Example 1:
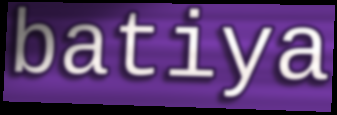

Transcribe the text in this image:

batiya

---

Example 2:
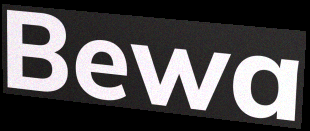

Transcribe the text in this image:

Bewa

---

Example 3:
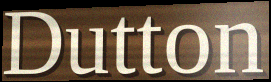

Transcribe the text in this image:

Dutton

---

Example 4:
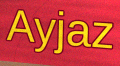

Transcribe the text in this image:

Ayjaz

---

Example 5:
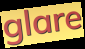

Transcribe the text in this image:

glare